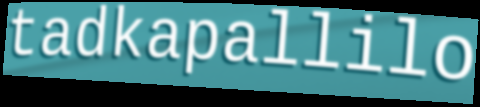
tadkapallilo